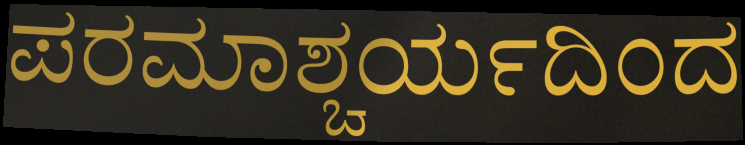
ಪರಮಾಶ್ಚರ್ಯದಿಂದ